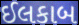
ઈલકાબ